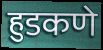
हुडकणे